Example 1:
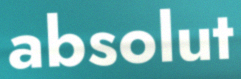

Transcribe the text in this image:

absolut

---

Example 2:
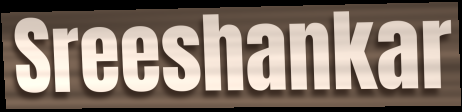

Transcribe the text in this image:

Sreeshankar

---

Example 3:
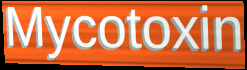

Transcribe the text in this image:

Mycotoxin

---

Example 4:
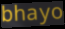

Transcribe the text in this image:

bhayo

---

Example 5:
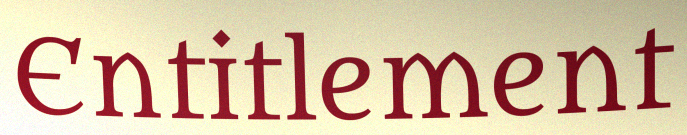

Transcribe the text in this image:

Entitlement